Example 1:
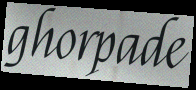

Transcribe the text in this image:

ghorpade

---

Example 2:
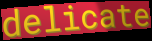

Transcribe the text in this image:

delicate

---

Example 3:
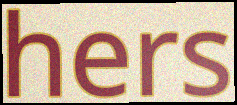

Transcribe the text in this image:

hers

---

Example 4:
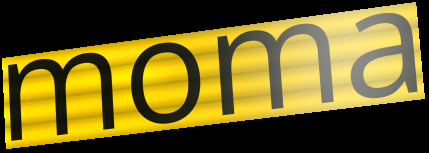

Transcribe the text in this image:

moma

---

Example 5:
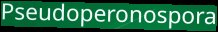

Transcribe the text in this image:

Pseudoperonospora